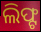
ଲିଫ୍ଟ